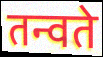
तन्वते